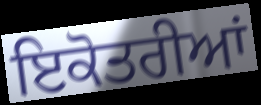
ਇਕੋਤਰੀਆਂ